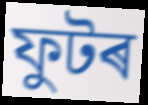
ফুটৰ